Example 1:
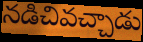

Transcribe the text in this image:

నడిచివచ్చాడు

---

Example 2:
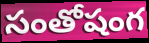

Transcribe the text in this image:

సంతోషంగ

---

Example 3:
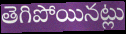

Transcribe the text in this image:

తెగిపోయినట్లు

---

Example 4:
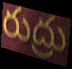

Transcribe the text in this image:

రుద్రు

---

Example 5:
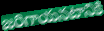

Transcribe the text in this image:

జరిగాయనటానికి